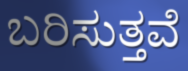
ಬರಿಸುತ್ತವೆ